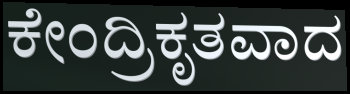
ಕೇಂದ್ರಿಕೃತವಾದ